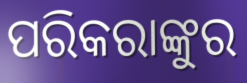
ପରିକରାଙ୍କୁର